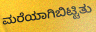
ಮರೆಯಾಗಿಬಿಟ್ಟಿತು